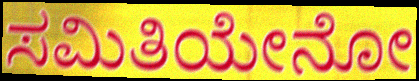
ಸಮಿತಿಯೇನೋ